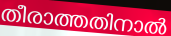
തീരാത്തതിനാൽ